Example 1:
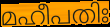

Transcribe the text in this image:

മഹീപതിഃ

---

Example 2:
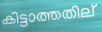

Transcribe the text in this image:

കിട്ടാത്തതില്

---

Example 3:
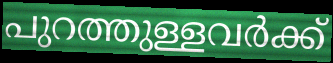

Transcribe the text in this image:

പുറത്തുള്ളവർക്ക്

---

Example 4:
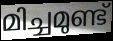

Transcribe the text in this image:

മിച്ചമുണ്ട്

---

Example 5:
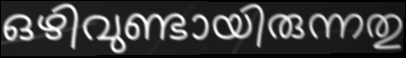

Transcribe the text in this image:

ഒഴിവുണ്ടായിരുന്നതു